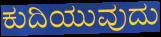
ಕುದಿಯುವುದು